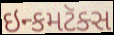
ઇન્કમટૅક્સ